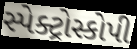
સ્પેક્ટ્રોસ્કોપી